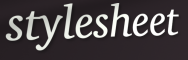
stylesheet